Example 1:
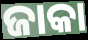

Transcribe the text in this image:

ଜାକା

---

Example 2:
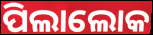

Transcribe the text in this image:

ପିଲାଲୋକ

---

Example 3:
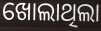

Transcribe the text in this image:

ଖୋଲାଥିଲା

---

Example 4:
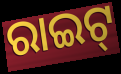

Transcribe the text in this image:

ରାଇଟ୍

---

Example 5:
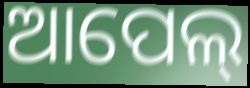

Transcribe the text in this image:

ଆପେଲ୍